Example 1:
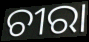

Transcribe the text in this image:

ଚୀରା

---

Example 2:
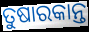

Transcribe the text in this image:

ତୁଷାରକାନ୍ତ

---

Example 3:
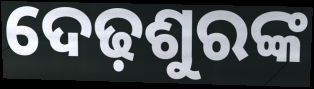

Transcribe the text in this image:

ଦେଢ଼ଶୁରଙ୍କ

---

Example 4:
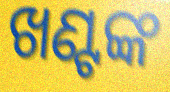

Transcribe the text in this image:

ଖଣ୍ଟଙ୍କ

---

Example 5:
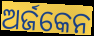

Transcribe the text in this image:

ଅର୍ଜକେନ